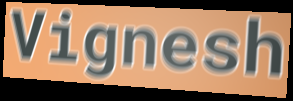
Vignesh